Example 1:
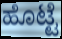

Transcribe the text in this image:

ಹೊಟ್ಟೆ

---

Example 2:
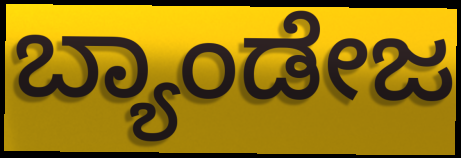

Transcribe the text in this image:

ಬ್ಯಾಂಡೇಜ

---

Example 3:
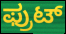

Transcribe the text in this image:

ಫ್ರುಟ್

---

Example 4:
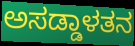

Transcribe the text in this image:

ಅಸಡ್ಡಾಳತನ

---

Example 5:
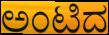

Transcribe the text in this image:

ಅಂಟಿದ